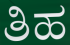
ತಿಹ